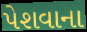
પેશવાના